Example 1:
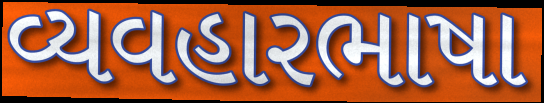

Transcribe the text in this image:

વ્યવહારભાષા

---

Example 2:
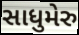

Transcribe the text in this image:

સાધુમેરુ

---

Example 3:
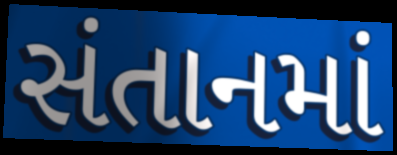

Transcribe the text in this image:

સંતાનમાં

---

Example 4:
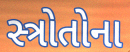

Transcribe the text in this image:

સ્ત્રોતોના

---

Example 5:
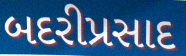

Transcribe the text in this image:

બદરીપ્રસાદ